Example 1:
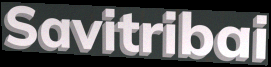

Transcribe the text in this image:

Savitribai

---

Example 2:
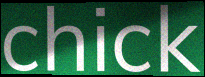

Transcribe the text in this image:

chick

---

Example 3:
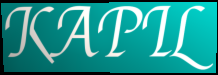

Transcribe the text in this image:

KAPIL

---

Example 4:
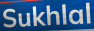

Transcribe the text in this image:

Sukhlal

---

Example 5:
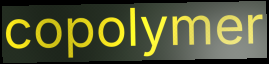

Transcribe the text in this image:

copolymer